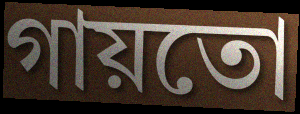
গায়তো